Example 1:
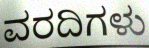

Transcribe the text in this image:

ವರದಿಗಳು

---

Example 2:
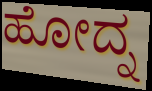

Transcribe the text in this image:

ಹೋದ್ನ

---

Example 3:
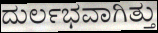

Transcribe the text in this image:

ದುರ್ಲಭವಾಗಿತ್ತು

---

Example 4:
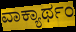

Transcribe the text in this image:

ವಾಕ್ಯಾರ್ಥಂ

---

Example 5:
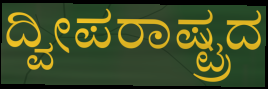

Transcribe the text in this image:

ದ್ವೀಪರಾಷ್ಟ್ರದ